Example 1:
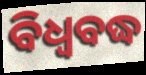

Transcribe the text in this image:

ବିଧ୍ଵବଦ୍ଧ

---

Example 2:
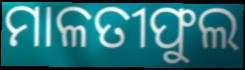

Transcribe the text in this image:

ମାଳତୀଫୁଲ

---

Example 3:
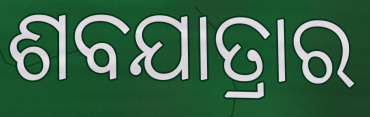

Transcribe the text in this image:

ଶବଯାତ୍ରାର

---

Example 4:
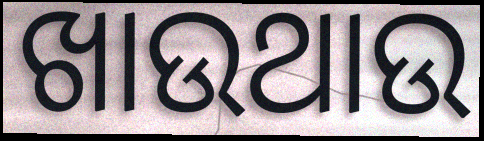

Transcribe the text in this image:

ଖାଉଥାଉ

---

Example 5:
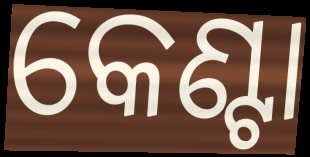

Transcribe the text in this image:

କେଣ୍ଟା